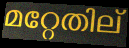
മറ്റേതില്